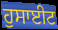
ਹੁਸਾਈਟ